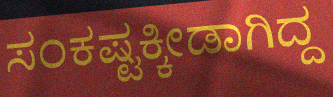
ಸಂಕಷ್ಟಕ್ಕೀಡಾಗಿದ್ದ